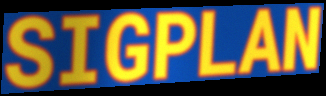
SIGPLAN